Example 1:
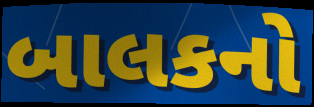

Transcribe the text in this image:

બાલકનો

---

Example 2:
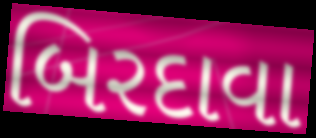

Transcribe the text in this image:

બિરદાવા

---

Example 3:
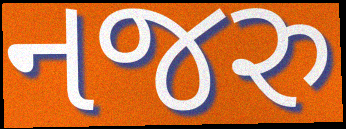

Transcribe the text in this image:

નજરુ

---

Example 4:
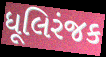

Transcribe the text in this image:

ધૂલિરંજક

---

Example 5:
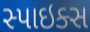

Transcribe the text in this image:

સ્પાઇક્સ